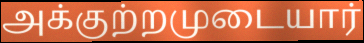
அக்குற்றமுடையார்